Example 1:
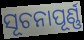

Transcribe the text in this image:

ସୂଚନାପୂର୍ଣ୍ଣ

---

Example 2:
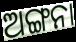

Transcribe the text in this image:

ଅଙ୍ଗନା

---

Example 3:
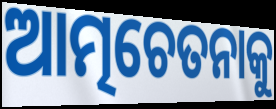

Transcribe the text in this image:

ଆତ୍ମଚେତନାକୁ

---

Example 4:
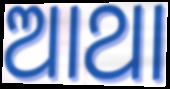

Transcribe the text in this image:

ଆଥା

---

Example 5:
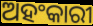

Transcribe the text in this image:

ଅହଂକାରୀ